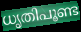
ധൃതിപൂണ്ട